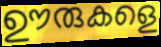
ഊരുകളെ